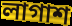
লাগাশ